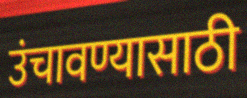
उंचावण्यासाठी